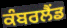
ਕੰਬਰਲੈਂਡ